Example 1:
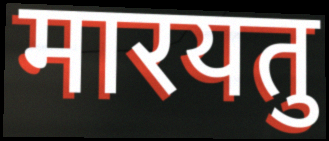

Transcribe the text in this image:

मारयतु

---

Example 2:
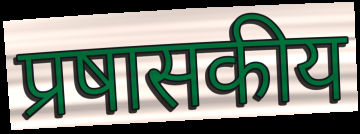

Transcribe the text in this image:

प्रषासकीय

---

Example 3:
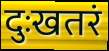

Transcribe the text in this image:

दुःखतरं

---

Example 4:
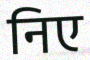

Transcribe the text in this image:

निए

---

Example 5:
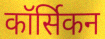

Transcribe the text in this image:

कॉर्सिकन